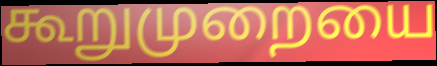
கூறுமுறையை